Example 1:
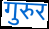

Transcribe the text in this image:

गुरुर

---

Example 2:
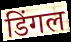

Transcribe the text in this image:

डिंगल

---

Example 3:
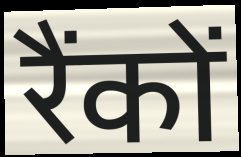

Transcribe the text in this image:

रैंकों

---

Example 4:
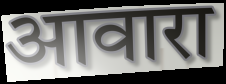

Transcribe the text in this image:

आवारा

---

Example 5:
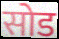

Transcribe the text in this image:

सोड